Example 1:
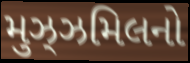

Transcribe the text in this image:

મુઝ્ઝમિલનો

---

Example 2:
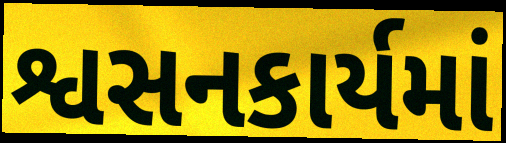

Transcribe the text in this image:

શ્વસનકાર્યમાં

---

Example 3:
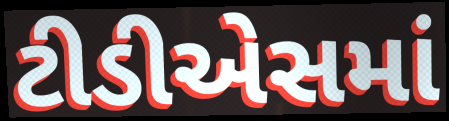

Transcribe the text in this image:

ટીડીએસમાં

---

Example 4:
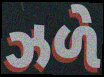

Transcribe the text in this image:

ઝળે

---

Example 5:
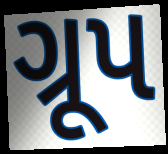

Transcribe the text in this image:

ગ્રૂપ